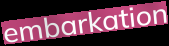
embarkation